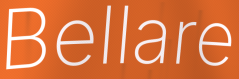
Bellare